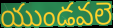
యుండవలె